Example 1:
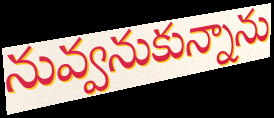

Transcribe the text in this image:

నువ్వనుకున్నాను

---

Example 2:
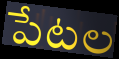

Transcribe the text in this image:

పేటల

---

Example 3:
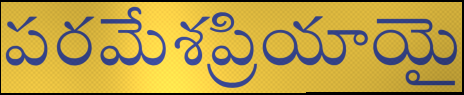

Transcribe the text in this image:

పరమేశప్రియాయై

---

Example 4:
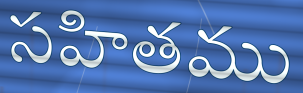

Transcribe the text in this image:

సహితము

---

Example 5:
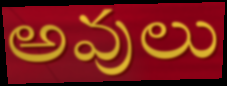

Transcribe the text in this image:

అవులు